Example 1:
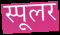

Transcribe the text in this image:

स्पूलर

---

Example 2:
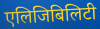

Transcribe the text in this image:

एलिजिबिलिटी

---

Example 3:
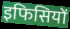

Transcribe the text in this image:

इफिसियों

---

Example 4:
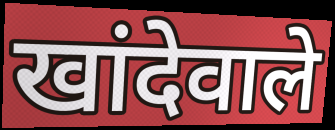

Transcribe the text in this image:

खांदेवाले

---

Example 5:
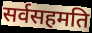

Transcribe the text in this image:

सर्वसहमति